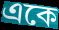
একে